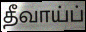
தீவாய்ப்